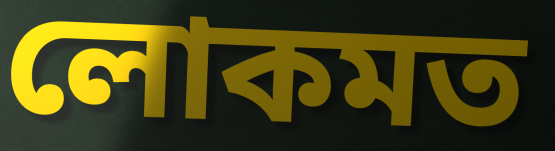
লোকমত